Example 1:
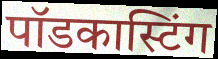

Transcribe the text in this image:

पॉडकास्टिंग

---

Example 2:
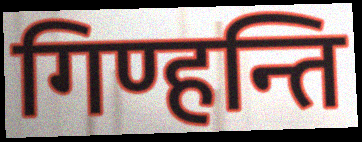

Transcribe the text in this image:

गिण्हन्ति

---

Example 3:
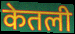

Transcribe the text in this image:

केतली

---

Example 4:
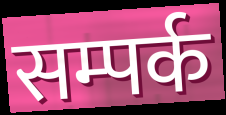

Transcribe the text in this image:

सम्‍पर्क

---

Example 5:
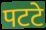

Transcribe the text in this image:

पटटे